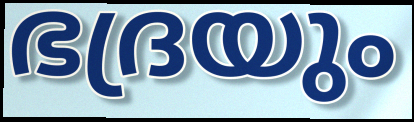
ഭദ്രയും